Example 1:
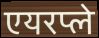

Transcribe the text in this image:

एयरप्ले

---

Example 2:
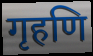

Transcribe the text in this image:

गृहणि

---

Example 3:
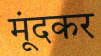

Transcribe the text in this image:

मूंदकर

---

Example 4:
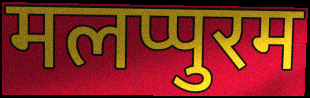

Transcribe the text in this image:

मलप्पुरम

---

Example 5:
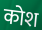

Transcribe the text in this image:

कोश